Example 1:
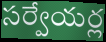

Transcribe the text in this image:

సర్వేయర్ల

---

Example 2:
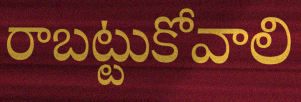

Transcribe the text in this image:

రాబట్టుకోవాలి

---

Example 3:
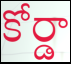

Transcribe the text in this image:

కోర్డా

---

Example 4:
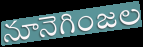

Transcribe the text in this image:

నూనెగింజల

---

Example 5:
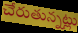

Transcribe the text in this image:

చేరుతున్నట్లు